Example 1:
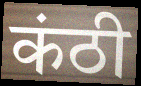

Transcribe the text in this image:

कंठी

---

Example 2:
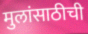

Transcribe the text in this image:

मुलांसाठीची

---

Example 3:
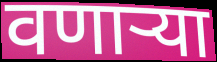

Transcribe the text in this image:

वणाऱ्या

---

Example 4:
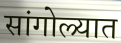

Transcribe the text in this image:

सांगोल्यात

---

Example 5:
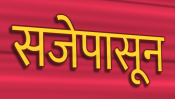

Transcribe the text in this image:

सजेपासून